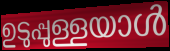
ഉടുപ്പുള്ളയാൾ